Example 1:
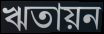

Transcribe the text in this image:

ঋতায়ন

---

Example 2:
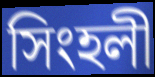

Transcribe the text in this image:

সিংহলী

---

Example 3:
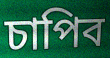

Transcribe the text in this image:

চাপিব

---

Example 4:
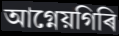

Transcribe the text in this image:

আগ্নেয়গিৰি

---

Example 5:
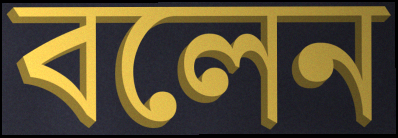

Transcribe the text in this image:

বলেন